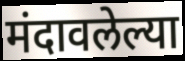
मंदावलेल्या